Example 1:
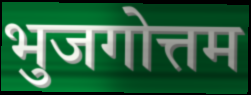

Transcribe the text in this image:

भुजगोत्तम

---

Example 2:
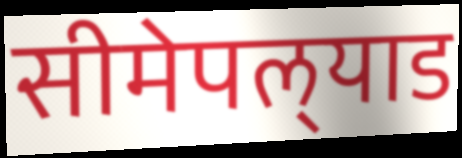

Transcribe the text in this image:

सीमेपल्याड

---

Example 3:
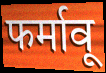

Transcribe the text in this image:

फर्मावू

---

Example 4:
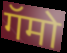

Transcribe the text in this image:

गॅमो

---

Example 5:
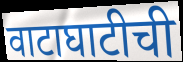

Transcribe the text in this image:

वाटाघाटीची